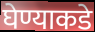
घेण्याकडे